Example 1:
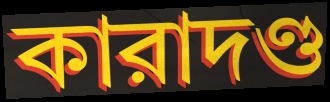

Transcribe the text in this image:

কারাদণ্ড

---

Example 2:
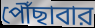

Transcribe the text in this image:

পৌঁছাবার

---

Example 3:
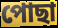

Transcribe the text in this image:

পোছা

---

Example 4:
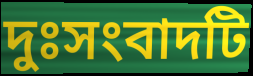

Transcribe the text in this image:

দুঃসংবাদটি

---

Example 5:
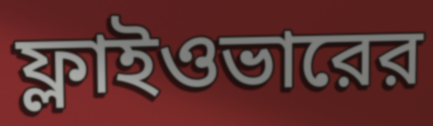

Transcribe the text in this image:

ফ্লাইওভারের